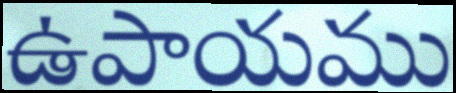
ఉపాయము